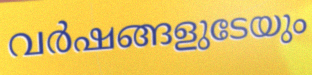
വർഷങ്ങളുടേയും